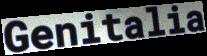
Genitalia